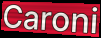
Caroni